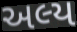
અલ્ય